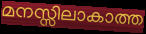
മനസ്സിലാകാത്ത